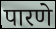
पारणे